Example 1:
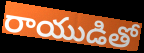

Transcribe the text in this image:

రాయుడితో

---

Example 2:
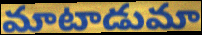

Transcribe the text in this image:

మాటాడుమా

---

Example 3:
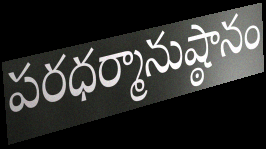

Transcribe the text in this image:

పరధర్మానుష్ఠానం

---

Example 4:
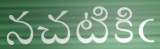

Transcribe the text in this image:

నచటికిఁ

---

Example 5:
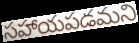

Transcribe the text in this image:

సహాయపడమని